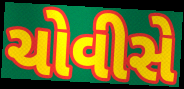
ચોવીસે